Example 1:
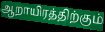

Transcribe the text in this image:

ஆறாயிரத்திற்கும்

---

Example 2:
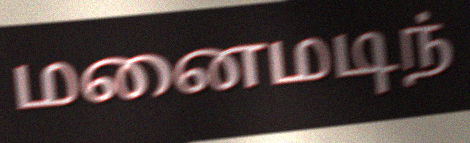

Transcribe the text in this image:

மனைமடிந்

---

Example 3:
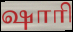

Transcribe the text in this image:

ஷாரி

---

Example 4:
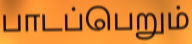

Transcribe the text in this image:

பாடப்பெறும்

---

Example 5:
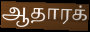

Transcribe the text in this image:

ஆதாரக்